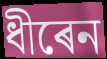
ধীৰেন